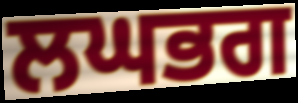
ਲਘਭਗ